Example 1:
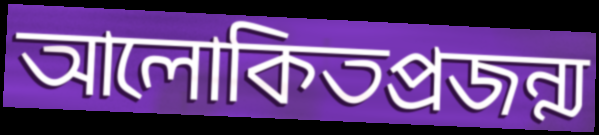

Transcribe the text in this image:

আলোকিতপ্রজন্ম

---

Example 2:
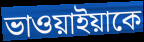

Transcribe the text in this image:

ভাওয়াইয়াকে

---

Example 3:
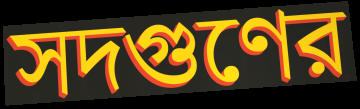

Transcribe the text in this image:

সদগুণের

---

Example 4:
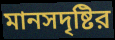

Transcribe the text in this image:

মানসদৃষ্টির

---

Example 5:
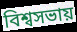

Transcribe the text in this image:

বিশ্বসভায়